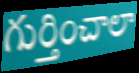
గుర్తించాలా